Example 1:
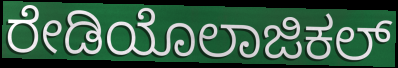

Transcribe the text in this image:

ರೇಡಿಯೊಲಾಜಿಕಲ್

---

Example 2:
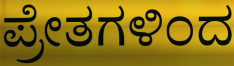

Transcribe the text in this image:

ಪ್ರೇತಗಳಿಂದ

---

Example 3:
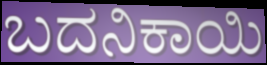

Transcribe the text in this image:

ಬದನಿಕಾಯಿ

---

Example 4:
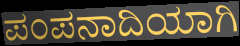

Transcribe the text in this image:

ಪಂಪನಾದಿಯಾಗಿ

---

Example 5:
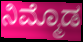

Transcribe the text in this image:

ನಿಮ್ಮೊಡ